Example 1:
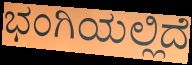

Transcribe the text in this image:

ಭಂಗಿಯಲ್ಲಿದೆ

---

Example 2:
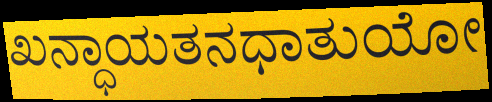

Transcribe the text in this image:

ಖನ್ಧಾಯತನಧಾತುಯೋ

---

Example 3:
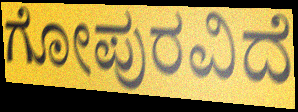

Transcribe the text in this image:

ಗೋಪುರವಿದೆ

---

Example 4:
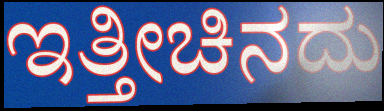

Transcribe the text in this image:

ಇತ್ತೀಚಿನದು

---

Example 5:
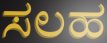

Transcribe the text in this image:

ಸಲಹ